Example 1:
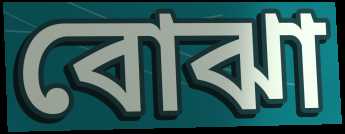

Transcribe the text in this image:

বোঝা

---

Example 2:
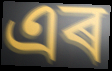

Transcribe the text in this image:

এৰ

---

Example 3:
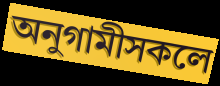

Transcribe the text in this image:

অনুগামীসকলে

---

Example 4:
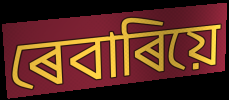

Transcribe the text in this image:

ৰেবাৰিয়ে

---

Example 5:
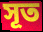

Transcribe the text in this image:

সূত